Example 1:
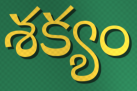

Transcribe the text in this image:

శక్యం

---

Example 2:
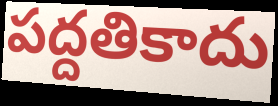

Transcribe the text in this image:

పద్దతికాదు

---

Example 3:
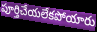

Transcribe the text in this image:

పూర్తిచేయలేకపోయారు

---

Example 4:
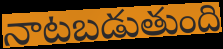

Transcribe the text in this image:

నాటబడుతుంది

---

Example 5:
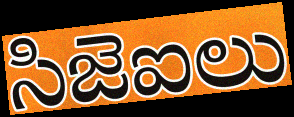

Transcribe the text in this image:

సిజెఐలు